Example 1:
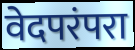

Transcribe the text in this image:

वेदपरंपरा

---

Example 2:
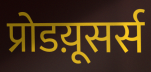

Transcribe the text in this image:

प्रोडय़ूसर्स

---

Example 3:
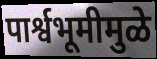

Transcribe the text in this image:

पार्श्वभूमीमुळे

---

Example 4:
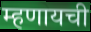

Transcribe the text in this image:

म्हणायची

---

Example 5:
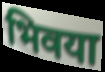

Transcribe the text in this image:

भिवया